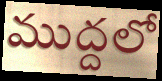
ముద్దలో